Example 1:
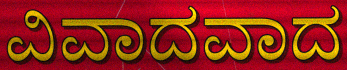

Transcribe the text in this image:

ವಿವಾದವಾದ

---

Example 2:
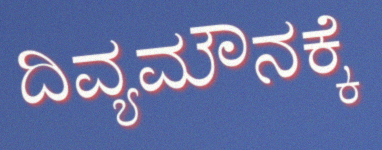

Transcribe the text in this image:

ದಿವ್ಯಮೌನಕ್ಕೆ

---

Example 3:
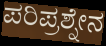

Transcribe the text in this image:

ಪರಿಪ್ರಶ್ನೇನ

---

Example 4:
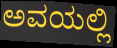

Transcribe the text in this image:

ಅವಯಲ್ಲಿ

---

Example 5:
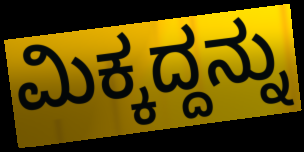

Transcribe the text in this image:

ಮಿಕ್ಕದ್ದನ್ನು